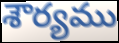
శౌర్యము